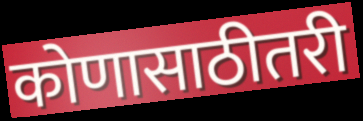
कोणासाठीतरी